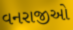
વનરાજીઓ